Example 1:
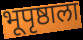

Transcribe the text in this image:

भूपृष्ठाला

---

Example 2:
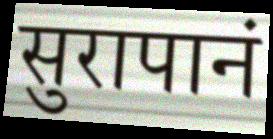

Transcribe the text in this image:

सुरापानं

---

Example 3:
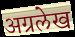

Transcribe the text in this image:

अग्रलेख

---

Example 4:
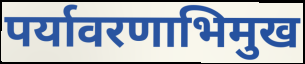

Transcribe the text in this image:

पर्यावरणाभिमुख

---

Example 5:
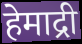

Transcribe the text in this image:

हेमाद्री